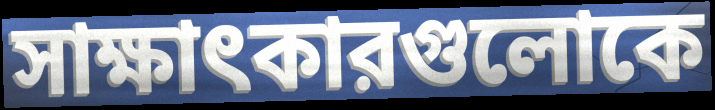
সাক্ষাৎকারগুলোকে